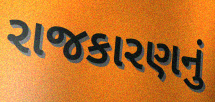
રાજકારણનું